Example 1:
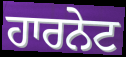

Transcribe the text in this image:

ਹਾਰਨੇਟ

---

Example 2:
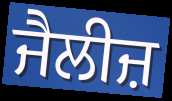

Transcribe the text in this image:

ਜੈਲੀਜ਼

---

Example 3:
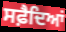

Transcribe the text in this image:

ਸਫ਼ੈਦਿਆਂ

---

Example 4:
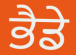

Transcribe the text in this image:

ਭੈਡੇ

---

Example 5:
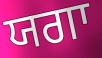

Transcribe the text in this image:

ਯਗਾ